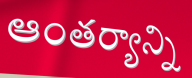
ఆంతర్యాన్ని